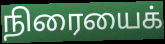
நிரையைக்